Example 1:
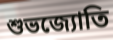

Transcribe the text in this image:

শুভজ্যোতি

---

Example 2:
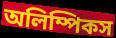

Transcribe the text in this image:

অলিম্পিকস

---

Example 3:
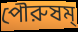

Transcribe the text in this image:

পৌরুষম্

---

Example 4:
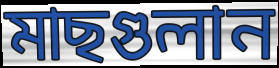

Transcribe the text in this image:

মাছগুলান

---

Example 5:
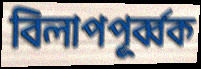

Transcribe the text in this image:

বিলাপপূর্ব্বক